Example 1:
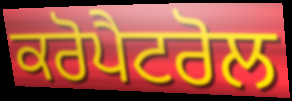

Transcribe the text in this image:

ਕਰੋਪੈਟਰੋਲ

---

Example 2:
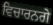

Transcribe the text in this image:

ਵਿਚਾਰਨਗੇ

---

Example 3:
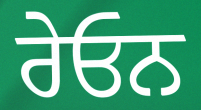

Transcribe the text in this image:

ਰੇਓਨ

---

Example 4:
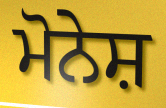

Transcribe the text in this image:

ਮੋਨੇਸ਼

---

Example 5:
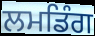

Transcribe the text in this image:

ਲਮਡਿੰਗ